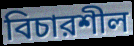
বিচারশীল